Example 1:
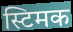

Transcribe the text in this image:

स्टिमक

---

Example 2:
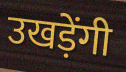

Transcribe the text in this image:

उखड़ेंगी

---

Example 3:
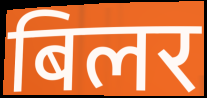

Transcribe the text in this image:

बिलर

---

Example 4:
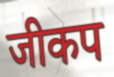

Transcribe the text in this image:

जीकप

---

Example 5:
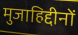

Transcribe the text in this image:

मुजाहिद्दीनों